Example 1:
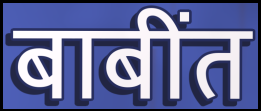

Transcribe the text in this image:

बाबींत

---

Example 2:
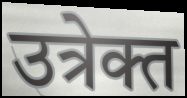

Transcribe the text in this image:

उत्रेक्त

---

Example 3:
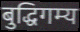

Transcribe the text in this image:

बुद्धिगम्य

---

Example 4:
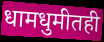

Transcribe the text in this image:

धामधुमीतही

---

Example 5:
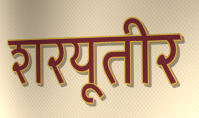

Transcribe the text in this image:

शरयूतीर